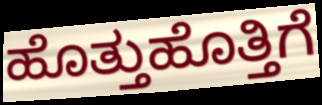
ಹೊತ್ತುಹೊತ್ತಿಗೆ